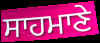
ਸਾਹਮਾਣੇ